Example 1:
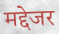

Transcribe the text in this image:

मद्देजर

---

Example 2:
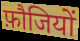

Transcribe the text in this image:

फ़ौजियों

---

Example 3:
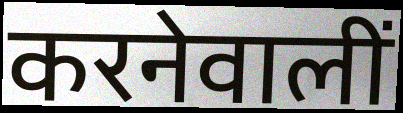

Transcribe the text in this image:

करनेवालीं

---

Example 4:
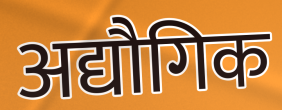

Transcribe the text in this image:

अद्यौगिक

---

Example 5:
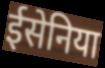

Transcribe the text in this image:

ईसेनिया